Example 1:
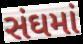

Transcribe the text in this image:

સંઘમાં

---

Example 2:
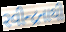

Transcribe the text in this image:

રવીન્દ્રનાથી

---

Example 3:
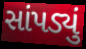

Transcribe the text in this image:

સાંપડ્યું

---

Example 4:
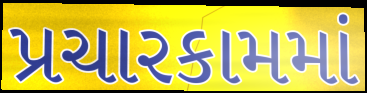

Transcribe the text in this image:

પ્રચારકામમાં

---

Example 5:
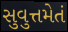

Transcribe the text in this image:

સુવુત્તમેતં